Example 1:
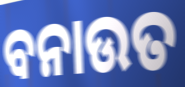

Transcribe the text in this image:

ବନାଉତ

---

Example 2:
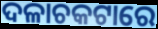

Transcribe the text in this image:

ଦଳାଚକଟାରେ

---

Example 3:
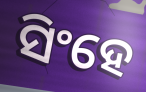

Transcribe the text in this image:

ସିଂହେ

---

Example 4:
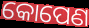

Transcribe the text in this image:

କୋପେଣ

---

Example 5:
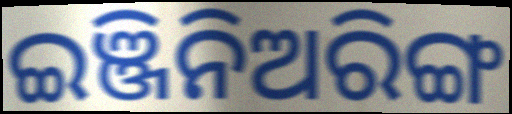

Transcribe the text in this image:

ଇଞ୍ଜିନିଅରିଙ୍ଗ